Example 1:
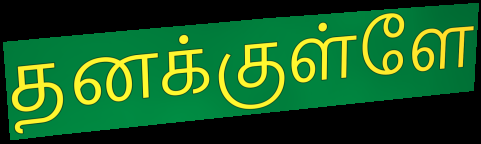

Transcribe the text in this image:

தனக்குள்ளே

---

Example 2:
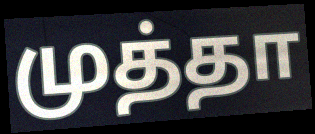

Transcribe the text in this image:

முத்தா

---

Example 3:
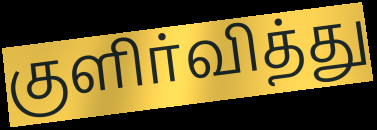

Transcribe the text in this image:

குளிர்வித்து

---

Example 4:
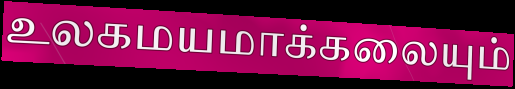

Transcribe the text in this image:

உலகமயமாக்கலையும்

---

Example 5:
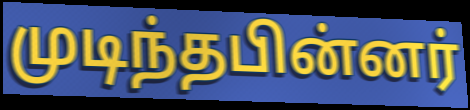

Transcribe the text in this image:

முடிந்தபின்னர்